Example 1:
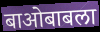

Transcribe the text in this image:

बाओबाबला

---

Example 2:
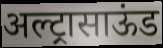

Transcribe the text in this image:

अल्ट्रासाऊंड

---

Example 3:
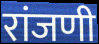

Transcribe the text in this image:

रांजणी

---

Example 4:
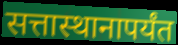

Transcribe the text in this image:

सत्तास्थानापर्यंत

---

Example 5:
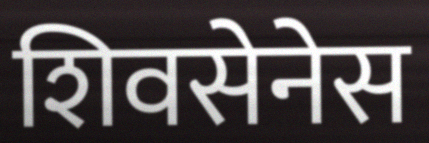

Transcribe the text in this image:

शिवसेनेस